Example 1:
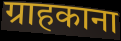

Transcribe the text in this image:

ग्राहकाना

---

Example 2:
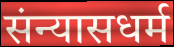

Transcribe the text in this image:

संन्यासधर्म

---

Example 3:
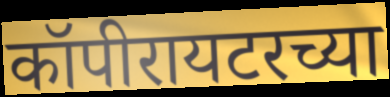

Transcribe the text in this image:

कॉपीरायटरच्या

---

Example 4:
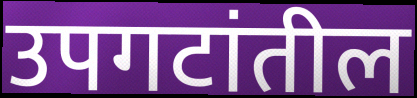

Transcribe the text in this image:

उपगटांतील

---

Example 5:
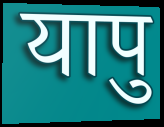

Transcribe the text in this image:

यापु